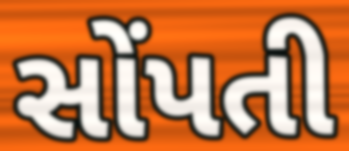
સોંપતી